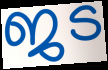
ജട